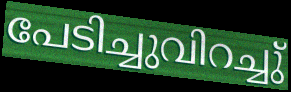
പേടിച്ചുവിറച്ചു്